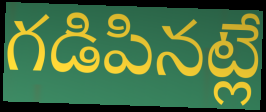
గడిపినట్లే